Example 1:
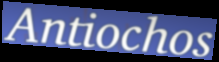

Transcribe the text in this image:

Antiochos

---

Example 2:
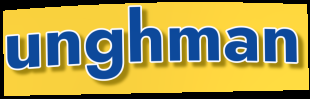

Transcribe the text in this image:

unghman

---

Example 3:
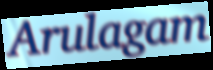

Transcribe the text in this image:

Arulagam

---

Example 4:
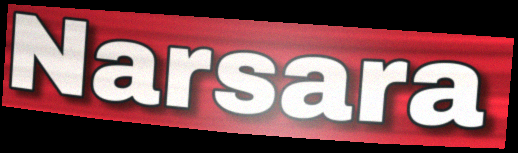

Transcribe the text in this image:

Narsara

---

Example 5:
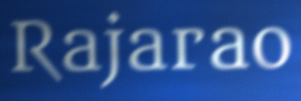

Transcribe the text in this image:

Rajarao